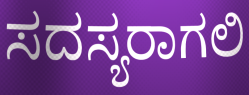
ಸದಸ್ಯರಾಗಲಿ